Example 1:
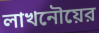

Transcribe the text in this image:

লাখনৌয়ের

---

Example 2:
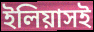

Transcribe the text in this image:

ইলিয়াসই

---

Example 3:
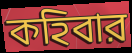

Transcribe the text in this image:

কহিবার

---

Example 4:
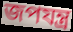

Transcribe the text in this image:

জপযন্ত্র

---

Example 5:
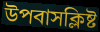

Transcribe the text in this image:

উপবাসক্লিষ্ট